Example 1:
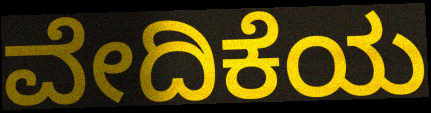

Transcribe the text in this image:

ವೇದಿಕೆಯ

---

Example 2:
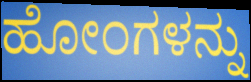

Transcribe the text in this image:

ಹೋಂಗಳನ್ನು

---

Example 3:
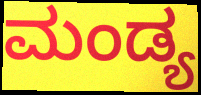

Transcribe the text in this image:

ಮಂಡ್ಯ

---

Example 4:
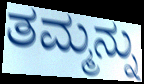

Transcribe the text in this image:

ತಮ್ಮನ್ನು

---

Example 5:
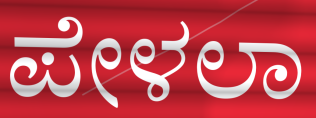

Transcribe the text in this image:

ಪೇಳಲಾ